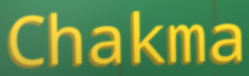
Chakma